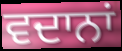
ਵਦਾਨਾਂ